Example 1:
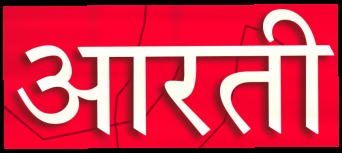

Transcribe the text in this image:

आरती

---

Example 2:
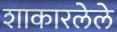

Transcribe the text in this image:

शाकारलेले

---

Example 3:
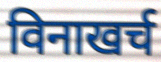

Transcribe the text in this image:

विनाखर्च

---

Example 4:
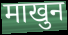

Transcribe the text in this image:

माखुन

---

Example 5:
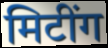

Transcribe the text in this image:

मिटींग